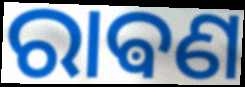
ରାଵଣ